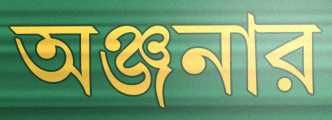
অঞ্জনার